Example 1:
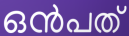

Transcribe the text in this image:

ഒൻപത്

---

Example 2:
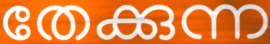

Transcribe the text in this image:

തേക്കുന്ന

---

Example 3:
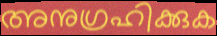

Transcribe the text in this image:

അനുഗ്രഹിക്കുക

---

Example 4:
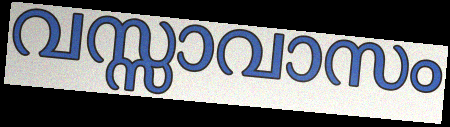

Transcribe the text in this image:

വസ്സാവാസം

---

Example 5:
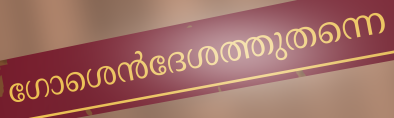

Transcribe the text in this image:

ഗോശെൻദേശത്തുതന്നെ